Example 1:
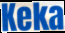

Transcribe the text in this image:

Keka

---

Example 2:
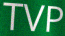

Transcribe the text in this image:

TVP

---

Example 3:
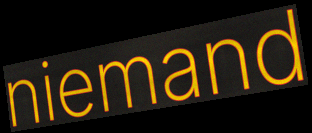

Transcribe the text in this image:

niemand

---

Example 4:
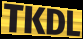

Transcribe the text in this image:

TKDL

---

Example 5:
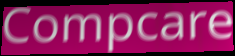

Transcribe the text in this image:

Compcare